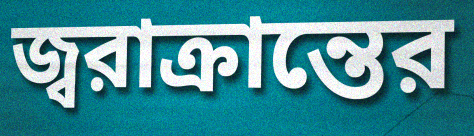
জ্বরাক্রান্তের